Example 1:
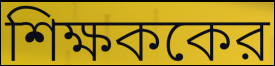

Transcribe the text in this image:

শিক্ষককের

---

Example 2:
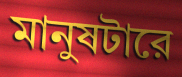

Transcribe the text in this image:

মানুষটারে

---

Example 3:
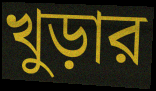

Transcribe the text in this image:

খুড়ার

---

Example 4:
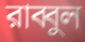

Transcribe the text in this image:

রাব্বুল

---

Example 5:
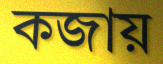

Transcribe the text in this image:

কজায়